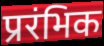
प्ररंभिक